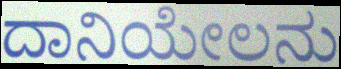
ದಾನಿಯೇಲನು